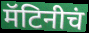
मॅटिनीचं